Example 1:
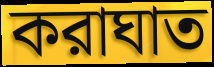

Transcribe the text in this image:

করাঘাত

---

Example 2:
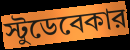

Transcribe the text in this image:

স্টুডেবেকার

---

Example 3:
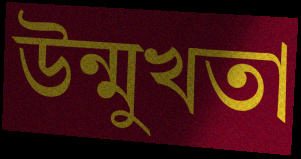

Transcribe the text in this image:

উন্মুখতা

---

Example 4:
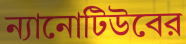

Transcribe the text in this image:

ন্যানোটিউবের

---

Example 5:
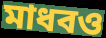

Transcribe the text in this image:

মাধবও